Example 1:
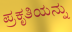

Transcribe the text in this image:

ಪ್ರಕೃತಿಯನ್ನು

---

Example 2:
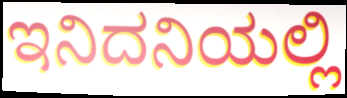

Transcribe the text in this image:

ಇನಿದನಿಯಲ್ಲಿ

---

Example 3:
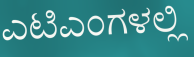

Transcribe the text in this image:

ಎಟಿಎಂಗಳಲ್ಲಿ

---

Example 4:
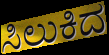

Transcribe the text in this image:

ಸಿಲುಕಿದ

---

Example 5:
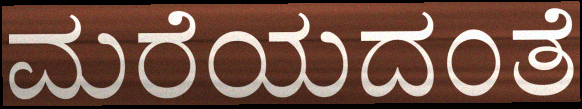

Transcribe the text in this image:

ಮರೆಯದಂತೆ